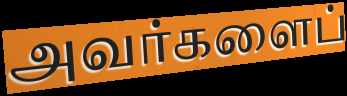
அவர்களைப்